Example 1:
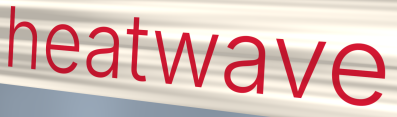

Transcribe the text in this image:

heatwave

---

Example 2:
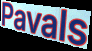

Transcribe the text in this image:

Pavals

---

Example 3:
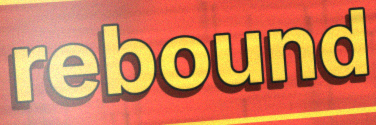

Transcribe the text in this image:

rebound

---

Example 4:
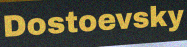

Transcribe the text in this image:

Dostoevsky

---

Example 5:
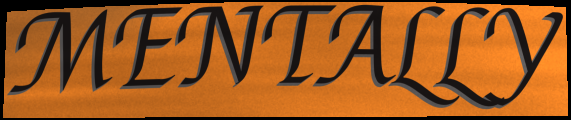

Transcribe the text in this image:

MENTALLY